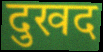
दुखद